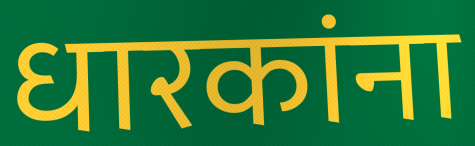
धारकांना